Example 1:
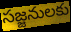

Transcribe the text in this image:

సజ్జనులకు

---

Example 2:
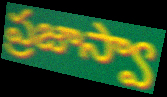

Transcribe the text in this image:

ప్రజాస్వా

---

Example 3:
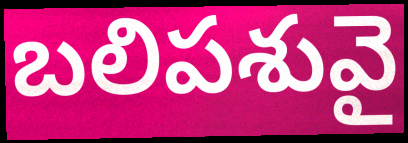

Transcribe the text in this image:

బలిపశువై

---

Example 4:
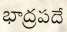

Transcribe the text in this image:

భాద్రపదే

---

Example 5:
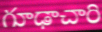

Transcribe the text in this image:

గూఢాచారి